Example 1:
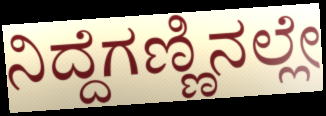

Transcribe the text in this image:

ನಿದ್ದೆಗಣ್ಣಿನಲ್ಲೇ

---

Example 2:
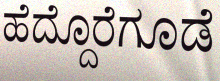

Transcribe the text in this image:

ಹೆದ್ದೊರೆಗೂಡೆ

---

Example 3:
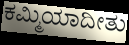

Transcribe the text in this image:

ಕಮ್ಮಿಯಾದೀತು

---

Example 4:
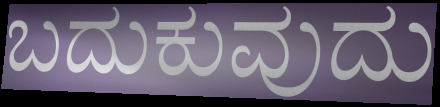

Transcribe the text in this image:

ಬದುಕುವುದು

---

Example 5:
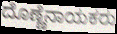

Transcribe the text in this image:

ದೊಣ್ಣೆನಾಯಕರು